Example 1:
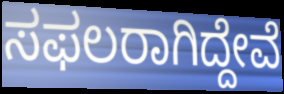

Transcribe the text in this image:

ಸಫಲರಾಗಿದ್ದೇವೆ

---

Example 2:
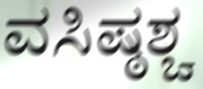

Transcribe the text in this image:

ವಸಿಷ್ಠಶ್ಚ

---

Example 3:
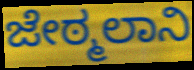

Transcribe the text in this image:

ಜೇಠ್ಮಲಾನಿ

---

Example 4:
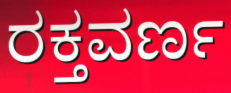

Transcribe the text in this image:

ರಕ್ತವರ್ಣ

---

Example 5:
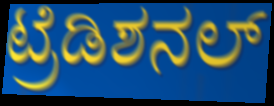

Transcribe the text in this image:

ಟ್ರೆಡಿಶನಲ್